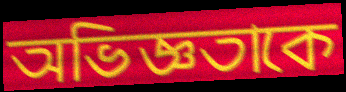
অভিজ্ঞতাকে